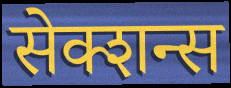
सेक्शन्स